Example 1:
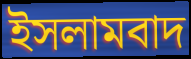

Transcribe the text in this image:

ইসলামবাদ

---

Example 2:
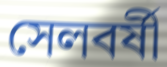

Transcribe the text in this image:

সেলবর্ষী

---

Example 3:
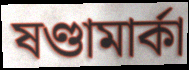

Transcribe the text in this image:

ষণ্ডামার্কা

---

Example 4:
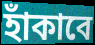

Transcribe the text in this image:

হাঁকাবে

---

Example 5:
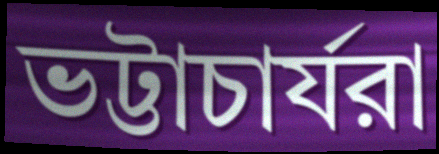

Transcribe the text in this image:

ভট্টাচার্যরা